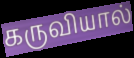
கருவியால்